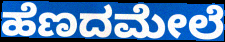
ಹೆಣದಮೇಲೆ